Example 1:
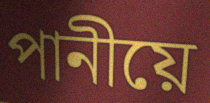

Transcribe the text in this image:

পানীয়ে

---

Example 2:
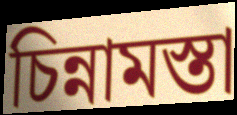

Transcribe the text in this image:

চিন্নামস্তা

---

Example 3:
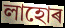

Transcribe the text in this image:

লাহোৰ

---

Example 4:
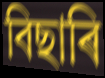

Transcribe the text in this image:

বিছাৰি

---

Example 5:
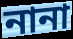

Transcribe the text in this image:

নানা